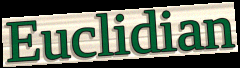
Euclidian